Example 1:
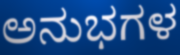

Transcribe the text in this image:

ಅನುಭಗಳ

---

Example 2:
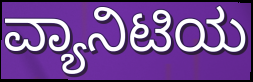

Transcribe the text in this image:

ವ್ಯಾನಿಟಿಯ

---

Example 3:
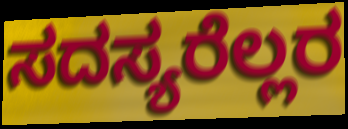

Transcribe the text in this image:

ಸದಸ್ಯರೆಲ್ಲರ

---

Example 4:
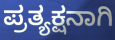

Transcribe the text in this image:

ಪ್ರತ್ಯಕ್ಷನಾಗಿ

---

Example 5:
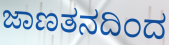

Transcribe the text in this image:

ಜಾಣತನದಿಂದ